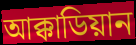
আক্কাডিয়ান